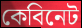
কেবিনেট